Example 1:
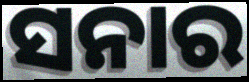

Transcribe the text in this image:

ସନାର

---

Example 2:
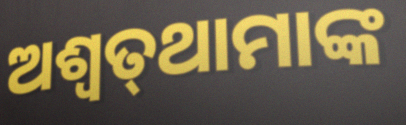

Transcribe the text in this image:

ଅଶ୍ୱତ୍‌ଥାମାଙ୍କ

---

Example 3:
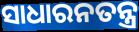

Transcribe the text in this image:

ସାଧାରନତନ୍ତ୍ର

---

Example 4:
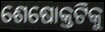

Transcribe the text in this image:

ଶେଷୋକ୍ତଟିକୁ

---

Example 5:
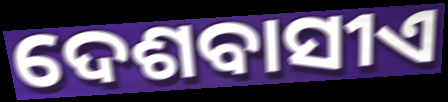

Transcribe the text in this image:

ଦେଶବାସୀଏ